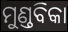
ମୁଣ୍ଡବିକା